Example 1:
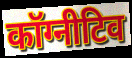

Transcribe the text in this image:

कॉग्नीटिव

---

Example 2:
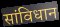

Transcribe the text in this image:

सांविधान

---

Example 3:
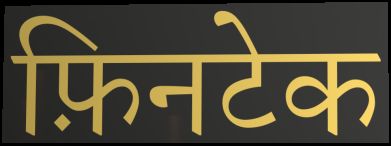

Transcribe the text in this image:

फ़िनटेक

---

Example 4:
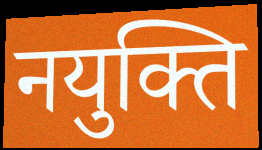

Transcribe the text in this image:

नयुक्ति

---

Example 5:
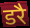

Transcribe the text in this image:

डरै